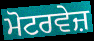
ਮੋਟਰਵੇਜ਼